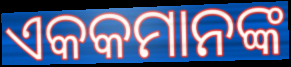
ଏକକମାନଙ୍କ